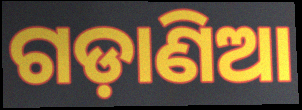
ଗଡ଼ାଣିଆ